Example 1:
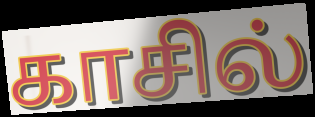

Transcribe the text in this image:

காசில்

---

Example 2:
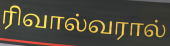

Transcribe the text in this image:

ரிவால்வரால்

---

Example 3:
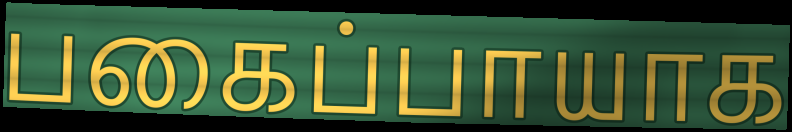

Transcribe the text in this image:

பகைப்பாயாக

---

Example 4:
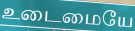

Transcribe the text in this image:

உடைமையே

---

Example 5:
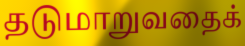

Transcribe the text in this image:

தடுமாறுவதைக்